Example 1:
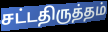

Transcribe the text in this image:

சட்டதிருத்தம்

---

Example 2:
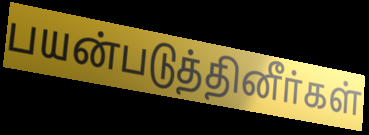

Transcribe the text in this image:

பயன்படுத்தினீர்கள்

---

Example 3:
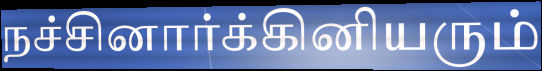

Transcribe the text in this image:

நச்சினார்க்கினியரும்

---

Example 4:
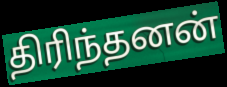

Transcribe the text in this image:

திரிந்தனன்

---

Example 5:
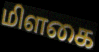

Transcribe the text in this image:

மிளகை